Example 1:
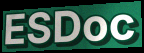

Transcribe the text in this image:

ESDoc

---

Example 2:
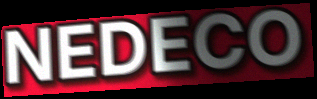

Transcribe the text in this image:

NEDECO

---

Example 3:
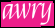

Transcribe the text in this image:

awry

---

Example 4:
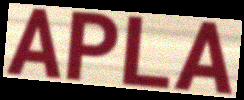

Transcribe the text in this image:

APLA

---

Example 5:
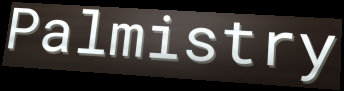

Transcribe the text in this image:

Palmistry